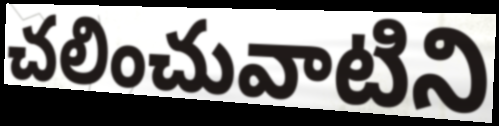
చలించువాటిని